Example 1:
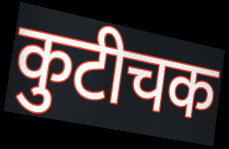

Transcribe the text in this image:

कुटीचक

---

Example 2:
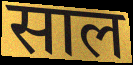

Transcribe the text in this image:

साल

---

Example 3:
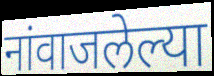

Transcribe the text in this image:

नांवाजलेल्या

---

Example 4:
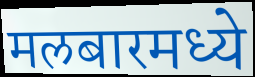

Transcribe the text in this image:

मलबारमध्ये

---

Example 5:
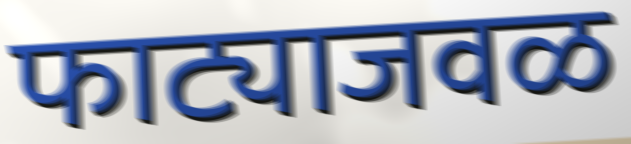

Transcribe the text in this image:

फाट्याजवळ